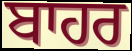
ਬਾਹਰ